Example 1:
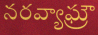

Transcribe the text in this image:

నరవ్యాఘ్రౌ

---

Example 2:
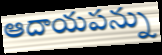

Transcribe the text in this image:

ఆదాయపన్ను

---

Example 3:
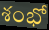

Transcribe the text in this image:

శంభో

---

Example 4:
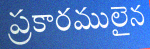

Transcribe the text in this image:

ప్రకారములైన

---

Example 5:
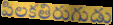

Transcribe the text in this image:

పిలకతిరుగుడు